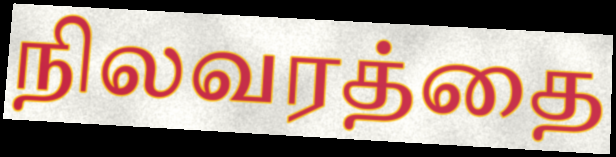
நிலவரத்தை